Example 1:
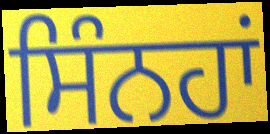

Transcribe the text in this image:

ਸਿੰਨਹਾਂ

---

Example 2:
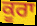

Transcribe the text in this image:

ਕੂਰਾ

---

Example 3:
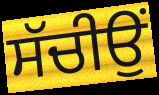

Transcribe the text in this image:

ਸੱਚੀਉਂ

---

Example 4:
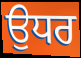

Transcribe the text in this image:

ਉਧਰ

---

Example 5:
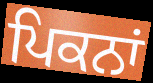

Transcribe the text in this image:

ਪਿਕਨਾਂ